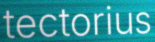
tectorius